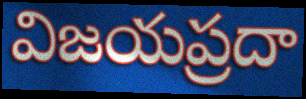
విజయప్రదా